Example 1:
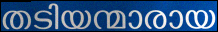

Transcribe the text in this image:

തടിയന്മാരായ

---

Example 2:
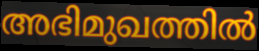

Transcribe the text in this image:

അഭിമുഖത്തിൽ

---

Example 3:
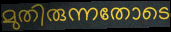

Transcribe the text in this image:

മുതിരുന്നതോടെ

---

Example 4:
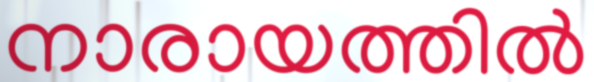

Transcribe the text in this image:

നാരായത്തിൽ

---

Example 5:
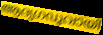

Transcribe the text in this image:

ആദ്യഗഡുവായി